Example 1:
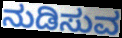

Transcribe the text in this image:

ನುಡಿಸುವ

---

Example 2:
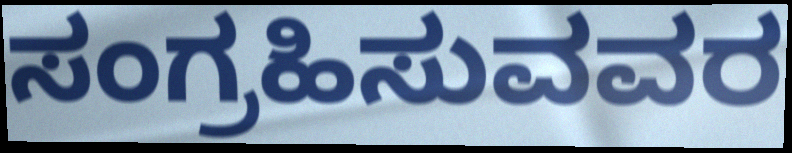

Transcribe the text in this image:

ಸಂಗ್ರಹಿಸುವವರ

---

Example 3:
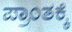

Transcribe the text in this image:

ಪ್ರಾಂತಕ್ಕೆ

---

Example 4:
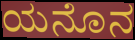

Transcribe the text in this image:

ಯನೊನ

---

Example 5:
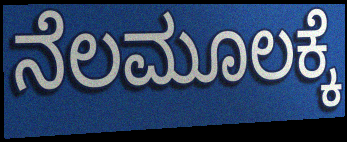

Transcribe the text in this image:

ನೆಲಮೂಲಕ್ಕೆ